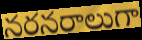
నరనరాలుగా